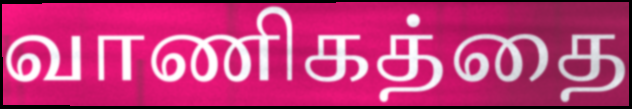
வாணிகத்தை